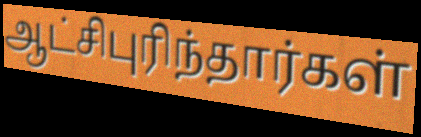
ஆட்சிபுரிந்தார்கள்